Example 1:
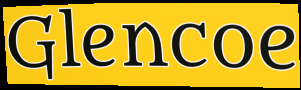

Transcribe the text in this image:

Glencoe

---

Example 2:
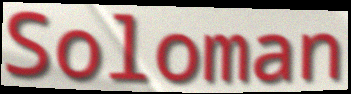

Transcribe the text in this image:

Soloman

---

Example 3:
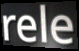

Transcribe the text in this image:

rele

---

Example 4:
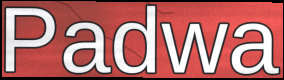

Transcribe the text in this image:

Padwa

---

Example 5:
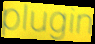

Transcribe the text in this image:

plugin